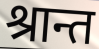
श्रान्त